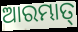
ଆରମ୍ଭାତ୍